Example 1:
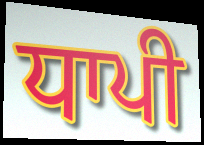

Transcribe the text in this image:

ਧਾਪੀ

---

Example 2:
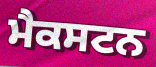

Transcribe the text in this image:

ਮੈਕਸਟਨ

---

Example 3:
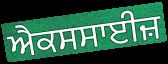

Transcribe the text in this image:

ਐਕਸਸਾਈਜ਼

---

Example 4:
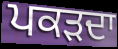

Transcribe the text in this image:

ਪਕੜਦਾ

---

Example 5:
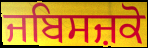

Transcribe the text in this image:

ਜਬਿਸਜ਼ਕੋ